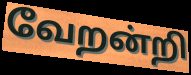
வேறன்றி